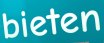
bieten